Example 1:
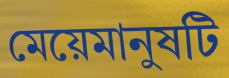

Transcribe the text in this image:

মেয়েমানুষটি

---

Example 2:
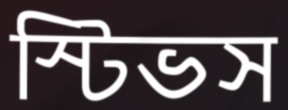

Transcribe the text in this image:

স্টিভস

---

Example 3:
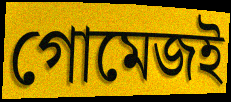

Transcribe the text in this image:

গোমেজই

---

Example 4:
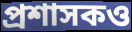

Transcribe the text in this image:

প্রশাসকও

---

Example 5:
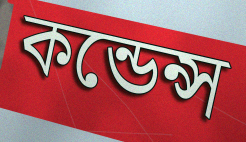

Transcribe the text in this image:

কন্ডেন্স